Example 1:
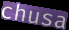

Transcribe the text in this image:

chusa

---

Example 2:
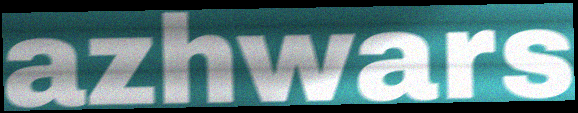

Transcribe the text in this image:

azhwars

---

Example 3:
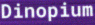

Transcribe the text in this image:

Dinopium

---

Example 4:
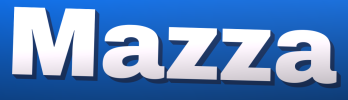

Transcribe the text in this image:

Mazza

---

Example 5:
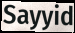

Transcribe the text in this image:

Sayyid